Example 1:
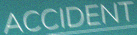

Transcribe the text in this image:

ACCIDENT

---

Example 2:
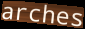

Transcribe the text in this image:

arches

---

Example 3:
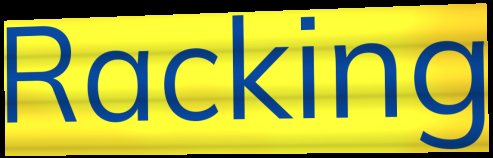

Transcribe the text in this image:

Racking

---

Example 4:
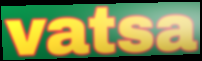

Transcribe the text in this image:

vatsa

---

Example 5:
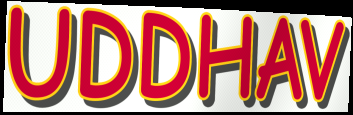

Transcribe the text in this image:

UDDHAV